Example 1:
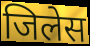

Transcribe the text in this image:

जिलेस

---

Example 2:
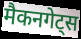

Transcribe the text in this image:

मैकनगेट्स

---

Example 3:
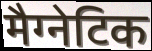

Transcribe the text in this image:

मैग्नेटिक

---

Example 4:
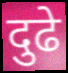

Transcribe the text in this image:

दुढे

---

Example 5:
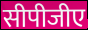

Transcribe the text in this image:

सीपीजीए